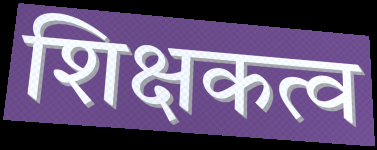
शिक्षकत्व